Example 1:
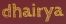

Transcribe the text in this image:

dhairya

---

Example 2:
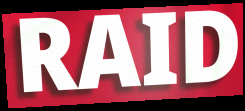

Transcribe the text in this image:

RAID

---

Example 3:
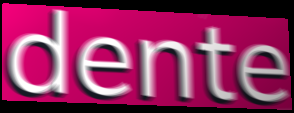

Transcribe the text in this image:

dente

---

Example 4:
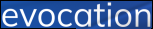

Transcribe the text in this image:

evocation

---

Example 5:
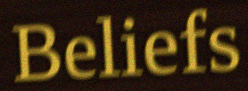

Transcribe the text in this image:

Beliefs